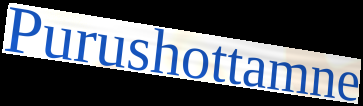
Purushottamne